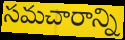
సమచారాన్ని